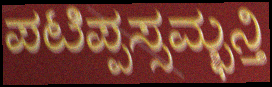
ಪಟಿಪ್ಪಸ್ಸಮ್ಭನ್ತಿ